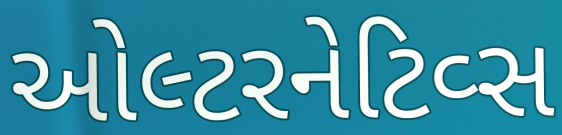
ઓલ્ટરનેટિવ્સ